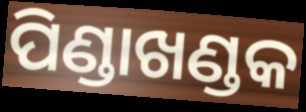
ପିଣ୍ଡାଖଣ୍ଡକ